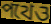
পথেও